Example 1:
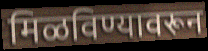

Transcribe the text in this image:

मिळविण्यावरून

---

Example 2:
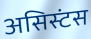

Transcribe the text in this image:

असिस्टंस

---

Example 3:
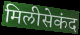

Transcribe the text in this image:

मिलीसेकंद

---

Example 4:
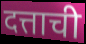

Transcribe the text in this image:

दत्ताची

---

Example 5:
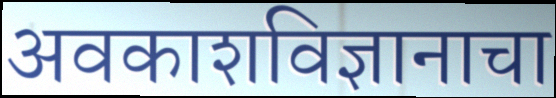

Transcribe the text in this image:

अवकाशविज्ञानाचा